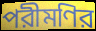
পরীমণির